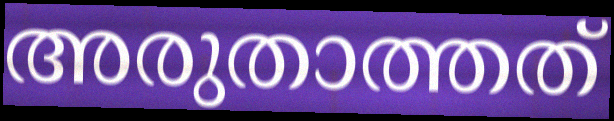
അരുതാത്തത്